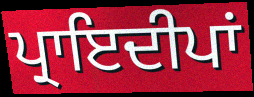
ਪ੍ਰਾਇਦੀਪਾਂ